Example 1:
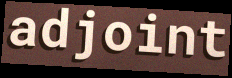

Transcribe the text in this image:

adjoint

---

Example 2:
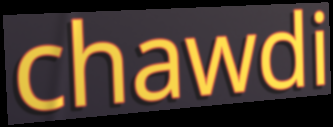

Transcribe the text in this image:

chawdi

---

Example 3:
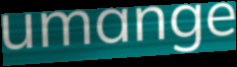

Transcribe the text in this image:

umange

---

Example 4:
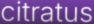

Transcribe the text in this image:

citratus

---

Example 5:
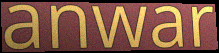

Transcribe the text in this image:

anwar